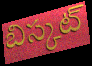
బిస్కట్